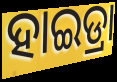
ହାଇଡ୍ରା